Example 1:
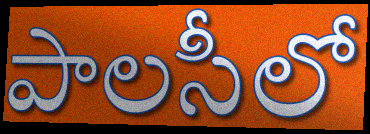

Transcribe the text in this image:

పాలసీలో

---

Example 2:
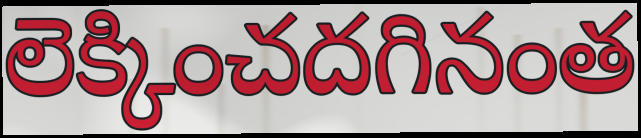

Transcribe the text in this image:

లెక్కించదగినంత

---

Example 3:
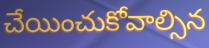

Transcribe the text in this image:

చేయించుకోవాల్సిన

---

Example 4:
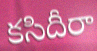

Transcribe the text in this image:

కసిదీరా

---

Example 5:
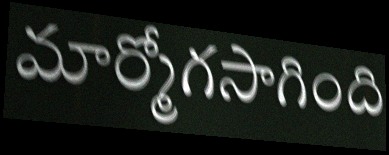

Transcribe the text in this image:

మార్మోగసాగింది